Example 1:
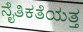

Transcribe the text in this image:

ನೈತಿಕತೆಯತ್ತ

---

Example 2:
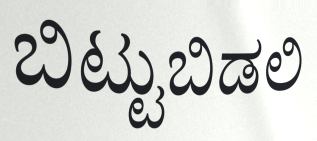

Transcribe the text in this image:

ಬಿಟ್ಟುಬಿಡಲಿ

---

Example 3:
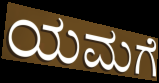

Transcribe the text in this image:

ಯಮಗೆ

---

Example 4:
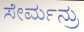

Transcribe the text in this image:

ಸೇರ್ಮನ್ರು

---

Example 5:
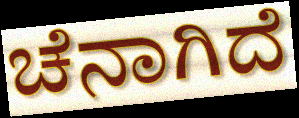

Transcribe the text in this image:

ಚೆನಾಗಿದೆ